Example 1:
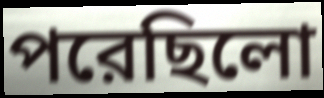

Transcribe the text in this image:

পরেছিলো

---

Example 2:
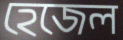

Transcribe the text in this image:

হেজেল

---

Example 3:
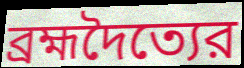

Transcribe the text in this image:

ব্রহ্মদৈত্যের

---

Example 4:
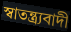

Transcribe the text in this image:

স্বাতন্ত্র্যবাদী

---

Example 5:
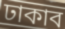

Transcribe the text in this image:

ঢাকাব